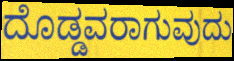
ದೊಡ್ಡವರಾಗುವುದು